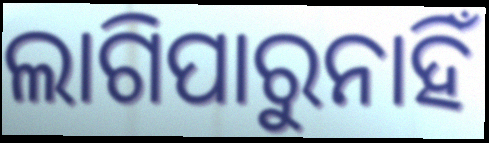
ଲାଗିପାରୁନାହିଁ